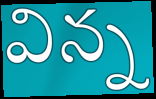
విన్న